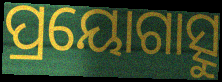
ପ୍ରୟୋଗାତ୍ସୁ